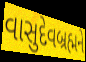
વાસુદેવબ્રહ્મને